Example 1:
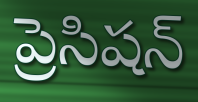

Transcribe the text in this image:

ప్రెసిషన్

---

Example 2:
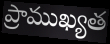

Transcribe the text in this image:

ప్రాముఖ్యత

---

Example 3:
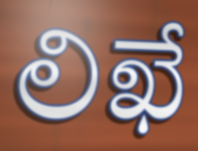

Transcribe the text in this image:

లిఖే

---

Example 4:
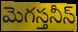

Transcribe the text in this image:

మెగస్తనీస్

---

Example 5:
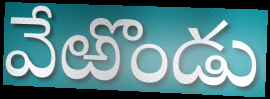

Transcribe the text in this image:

వేఱొండు